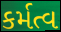
કર્મત્વ